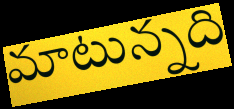
మాటున్నది